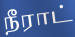
நீராட்